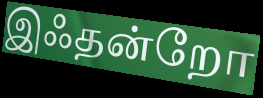
இஃதன்றோ